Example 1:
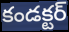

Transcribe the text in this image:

కండక్టర్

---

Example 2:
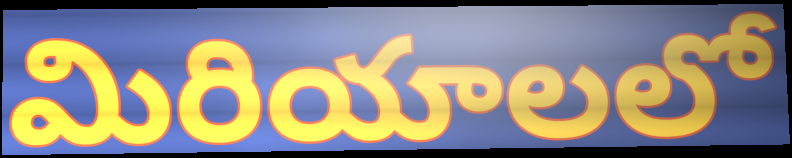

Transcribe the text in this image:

మిరియాలలో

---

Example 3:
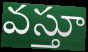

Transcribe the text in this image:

వస్తూ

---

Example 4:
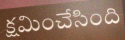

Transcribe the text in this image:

క్షమించేసింది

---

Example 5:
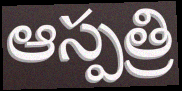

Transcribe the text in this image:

ఆస్పత్రి